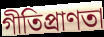
গীতিপ্রাণতা